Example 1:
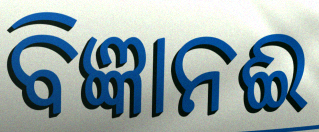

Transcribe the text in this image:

ବିଜ୍ଞାନଈ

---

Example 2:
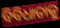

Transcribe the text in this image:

ବିବିଧାତାକୁ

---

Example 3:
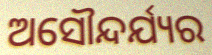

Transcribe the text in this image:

ଅସୌନ୍ଦର୍ଯ୍ୟର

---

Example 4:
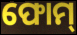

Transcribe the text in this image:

ଫୋମ୍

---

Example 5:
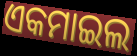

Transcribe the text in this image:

ଏକମାଇଲ